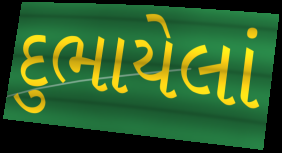
દુભાયેલાં